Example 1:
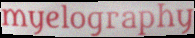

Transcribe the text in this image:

myelography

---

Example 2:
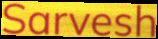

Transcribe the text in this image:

Sarvesh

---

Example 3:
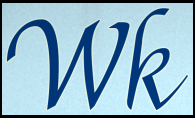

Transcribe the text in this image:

Wk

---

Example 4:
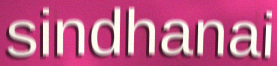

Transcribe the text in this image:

sindhanai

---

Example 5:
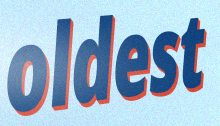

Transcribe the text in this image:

oldest